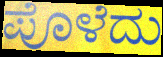
ಪೊಳೆದು